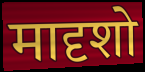
मादृशो